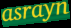
asrayn